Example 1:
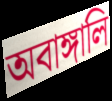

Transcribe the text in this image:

অবাঙ্গালি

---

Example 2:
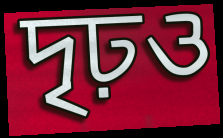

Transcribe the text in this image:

দৃঢ়ও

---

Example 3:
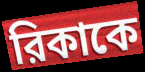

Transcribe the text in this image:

রিকাকে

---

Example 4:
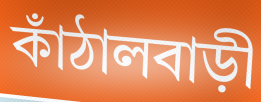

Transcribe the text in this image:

কাঁঠালবাড়ী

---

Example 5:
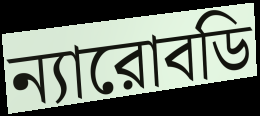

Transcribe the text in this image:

ন্যারোবডি